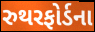
રુથરફોર્ડના